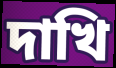
দাখি